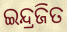
ଇନ୍ଦ୍ରଜିତ